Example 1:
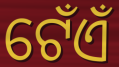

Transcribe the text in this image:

ଟେଁଏଁ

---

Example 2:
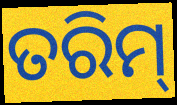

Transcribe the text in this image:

ତରିମ୍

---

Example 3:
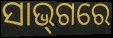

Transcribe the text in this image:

ସାଭ୍‌ଗରେ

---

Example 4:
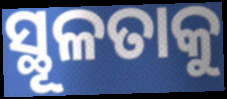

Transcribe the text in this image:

ସ୍ଥୂଳତାକୁ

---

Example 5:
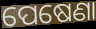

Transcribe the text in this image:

ପେଷେଣା